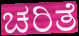
ಚರಿತೆ